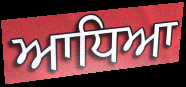
ਆਧਿਆ